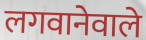
लगवानेवाले